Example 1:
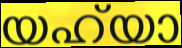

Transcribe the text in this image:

യഹ്‌യാ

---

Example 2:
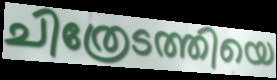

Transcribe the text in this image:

ചിത്രേടത്തിയെ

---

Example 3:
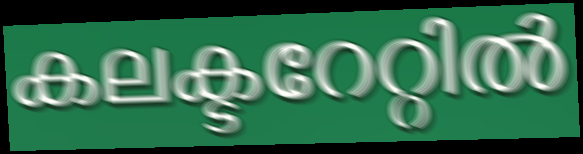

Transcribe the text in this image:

കലക്ടറേറ്റിൽ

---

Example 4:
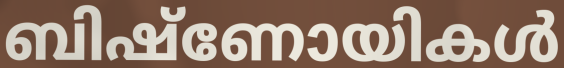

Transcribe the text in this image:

ബിഷ്ണോയികൾ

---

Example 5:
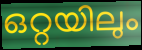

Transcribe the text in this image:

ഒറ്റയിലും